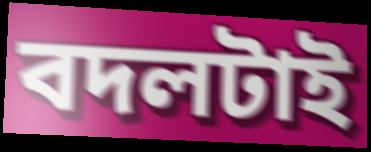
বদলটাই